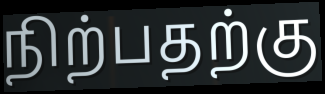
நிற்பதற்கு